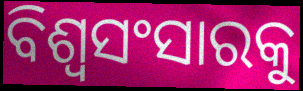
ବିଶ୍ୱସଂସାରକୁ